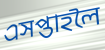
এসপ্তাহলৈ